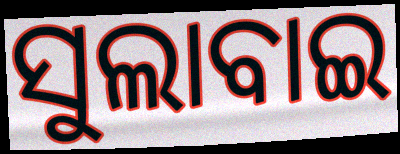
ସୁଲାବାଇ